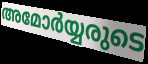
അമോർയ്യരുടെ